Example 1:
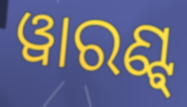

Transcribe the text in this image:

ୱାରଣ୍ଟ୍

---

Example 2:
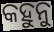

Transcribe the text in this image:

କହୁନୁ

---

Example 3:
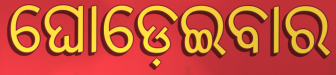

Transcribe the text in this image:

ଘୋଡ଼େଇବାର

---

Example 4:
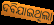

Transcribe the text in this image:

ଦବିଯାଇଥିଲା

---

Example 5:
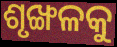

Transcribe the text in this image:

ଶୃଙ୍ଖଳକୁ